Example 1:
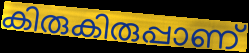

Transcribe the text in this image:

കിരുകിരുപ്പാണ്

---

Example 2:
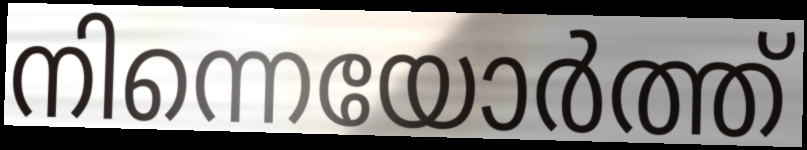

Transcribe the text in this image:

നിന്നെയോർത്ത്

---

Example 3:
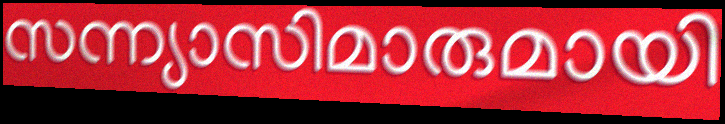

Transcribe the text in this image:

സന്ന്യാസിമാരുമായി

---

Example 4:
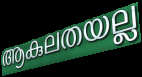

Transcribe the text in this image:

ആകുലതയല്ല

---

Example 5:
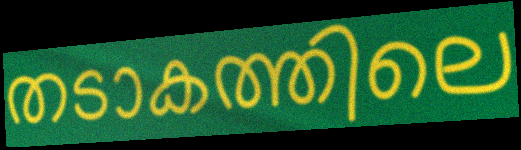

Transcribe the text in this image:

തടാകത്തിലെ